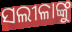
ସଲୀଳାଙ୍କୁ